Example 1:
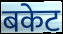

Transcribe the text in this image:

बकेट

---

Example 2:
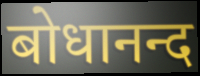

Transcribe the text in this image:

बोधानन्द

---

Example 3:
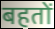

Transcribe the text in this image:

बहतों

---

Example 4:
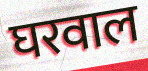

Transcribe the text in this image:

घरवाल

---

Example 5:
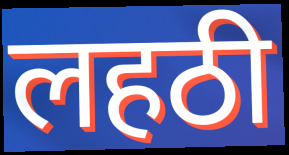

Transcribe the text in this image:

लहठी